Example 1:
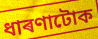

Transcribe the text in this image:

ধাৰণাটোক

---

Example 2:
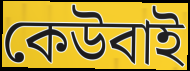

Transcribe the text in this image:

কেউবাই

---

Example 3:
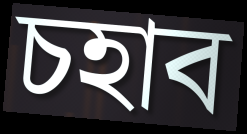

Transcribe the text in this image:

চহাব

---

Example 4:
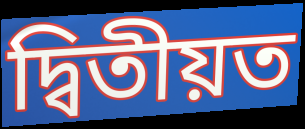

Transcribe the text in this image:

দ্বিতীয়ত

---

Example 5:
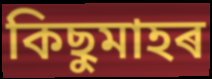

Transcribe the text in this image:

কিছুমাহৰ